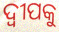
ଦ୍ୱୀପକୁ